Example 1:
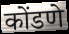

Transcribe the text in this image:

कोंडणे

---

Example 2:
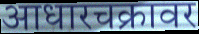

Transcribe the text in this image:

आधारचक्रावर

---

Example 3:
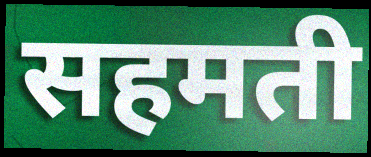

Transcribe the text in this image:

सहमती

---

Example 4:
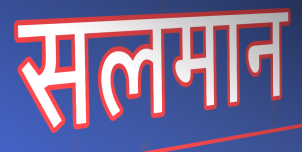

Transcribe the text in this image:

सलमान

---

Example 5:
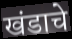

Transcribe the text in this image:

खंडाचे